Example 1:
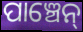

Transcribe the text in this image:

ପାଞ୍ଚେନ୍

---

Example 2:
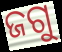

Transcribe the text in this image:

ଜଗୁ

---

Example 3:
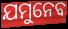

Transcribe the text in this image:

ଯମୁନେବ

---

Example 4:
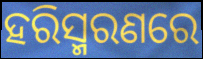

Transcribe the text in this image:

ହରିସ୍ମରଣରେ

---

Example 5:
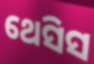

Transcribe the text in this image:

ଥେସିସ